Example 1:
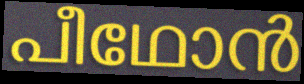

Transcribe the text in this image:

പീഥോൻ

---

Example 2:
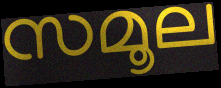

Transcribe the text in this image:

സമൂല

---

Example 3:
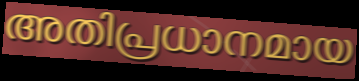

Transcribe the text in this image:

അതിപ്രധാനമായ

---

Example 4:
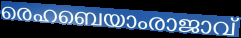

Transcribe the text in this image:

രെഹബെയാംരാജാവ്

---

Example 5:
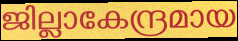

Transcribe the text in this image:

ജില്ലാകേന്ദ്രമായ